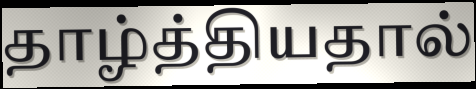
தாழ்த்தியதால்